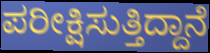
ಪರೀಕ್ಷಿಸುತ್ತಿದ್ದಾನೆ